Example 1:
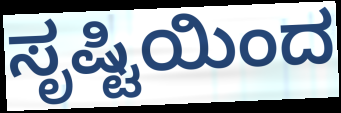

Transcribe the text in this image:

ಸೃಷ್ಟಿಯಿಂದ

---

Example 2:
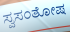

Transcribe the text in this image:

ಸ್ವಸಂತೋಷ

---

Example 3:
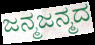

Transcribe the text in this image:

ಜನ್ಮಜನ್ಮದ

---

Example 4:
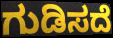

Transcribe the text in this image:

ಗುಡಿಸದೆ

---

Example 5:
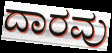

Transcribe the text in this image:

ದಾರವು